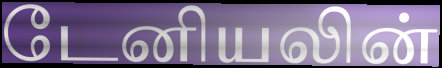
டேனியலின்